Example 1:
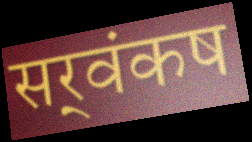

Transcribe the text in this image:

सर्वंकष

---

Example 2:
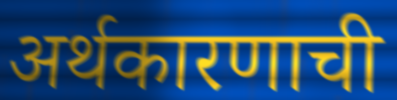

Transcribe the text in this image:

अर्थकारणाची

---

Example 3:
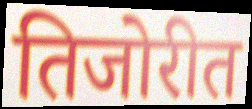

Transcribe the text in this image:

तिजोरीत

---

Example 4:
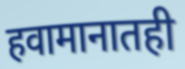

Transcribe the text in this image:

हवामानातही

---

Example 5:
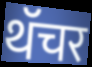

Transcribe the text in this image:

थॅचर